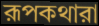
রূপকথারা